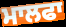
ਮਾਲਫਾ